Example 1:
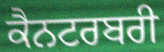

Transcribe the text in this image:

ਕੈਨਟਰਬਰੀ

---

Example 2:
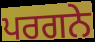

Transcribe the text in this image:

ਪਰਗਨੇ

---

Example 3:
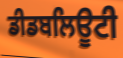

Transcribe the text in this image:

ਡੀਡਬਲਿਊਟੀ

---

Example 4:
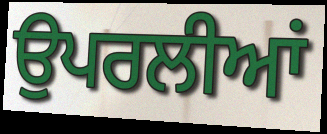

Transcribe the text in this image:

ਉਪਰਲੀਆਂ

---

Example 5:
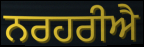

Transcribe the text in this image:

ਨਰਹਰੀਐ